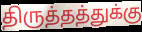
திருத்தத்துக்கு